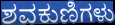
ಶವಕುಣಿಗಳು